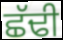
ਛੱਢੀ